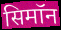
सिमॉन